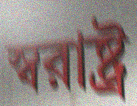
স্বরাষ্ট্র